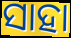
ସାହା